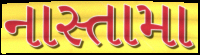
નાસ્તામા